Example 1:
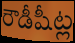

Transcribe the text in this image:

రౌడీషీట్ల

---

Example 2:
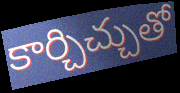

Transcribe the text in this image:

కార్చిచ్చుతో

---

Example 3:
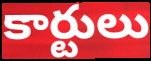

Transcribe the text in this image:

కార్టులు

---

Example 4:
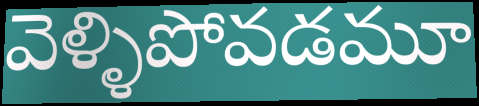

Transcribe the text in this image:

వెళ్ళిపోవడమూ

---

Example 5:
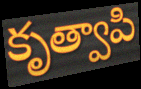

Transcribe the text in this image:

కృత్వాపి